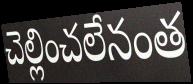
చెల్లించలేనంత